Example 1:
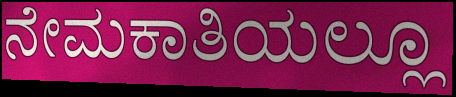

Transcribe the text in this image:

ನೇಮಕಾತಿಯಲ್ಲೂ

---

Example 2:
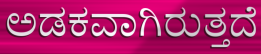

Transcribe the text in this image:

ಅಡಕವಾಗಿರುತ್ತದೆ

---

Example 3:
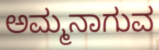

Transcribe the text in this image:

ಅಮ್ಮನಾಗುವ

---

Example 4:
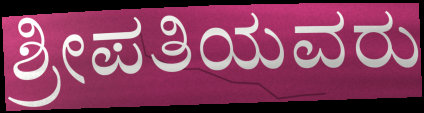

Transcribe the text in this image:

ಶ್ರೀಪತಿಯವರು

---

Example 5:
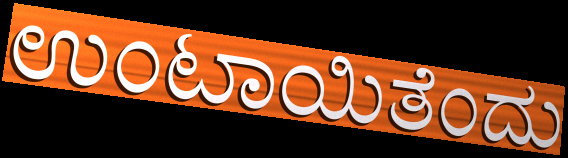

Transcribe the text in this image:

ಉಂಟಾಯಿತೆಂದು